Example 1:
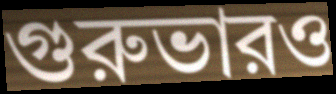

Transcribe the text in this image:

গুরুভারও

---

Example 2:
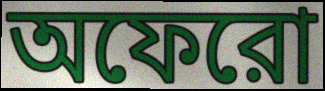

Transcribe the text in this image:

অফেরো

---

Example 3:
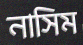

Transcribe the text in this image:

নাসিম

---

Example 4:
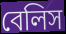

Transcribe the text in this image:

বেলিস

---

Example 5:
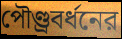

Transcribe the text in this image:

পৌণ্ড্রবর্ধনের